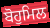
ਬੋਹੁਮਿਲ